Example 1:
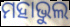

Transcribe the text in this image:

ମହାଭୁଲ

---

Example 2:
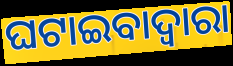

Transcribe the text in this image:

ଘଟାଇବାଦ୍ୱାରା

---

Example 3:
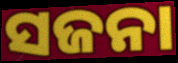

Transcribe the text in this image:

ସଜନା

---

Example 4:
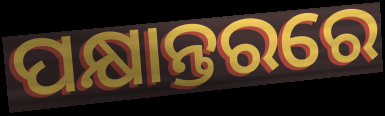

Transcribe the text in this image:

ପକ୍ଷାନ୍ତରରେ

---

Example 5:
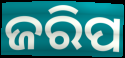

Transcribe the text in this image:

ଜରିପ